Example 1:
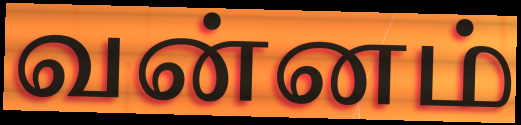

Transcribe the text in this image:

வன்னம்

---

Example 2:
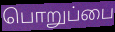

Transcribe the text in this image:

பொறுப்பை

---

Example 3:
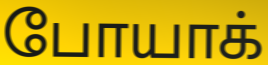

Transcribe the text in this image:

போயாக்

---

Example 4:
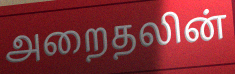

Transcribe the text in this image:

அறைதலின்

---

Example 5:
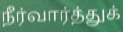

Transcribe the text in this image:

நீர்வார்த்துக்